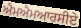
ਐਮਐਮਆਰਸੀਏ